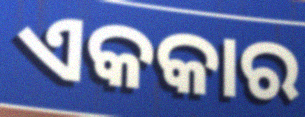
ଏକକାର